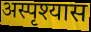
अस्पृश्यास